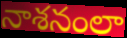
నాశనంలా